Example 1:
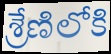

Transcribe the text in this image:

శ్రేణిలోకి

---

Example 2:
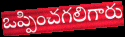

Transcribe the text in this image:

ఒప్పించగలిగారు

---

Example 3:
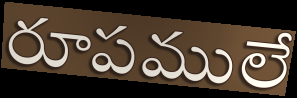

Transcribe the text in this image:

రూపములే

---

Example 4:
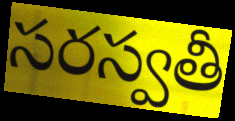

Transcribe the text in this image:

సరస్వతీ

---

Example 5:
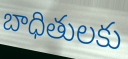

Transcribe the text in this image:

బాధితులకు